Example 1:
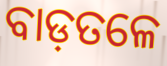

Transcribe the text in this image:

ବାଡ଼ତଳେ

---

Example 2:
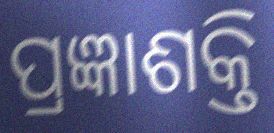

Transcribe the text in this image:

ପ୍ରଜ୍ଞାଶକ୍ତି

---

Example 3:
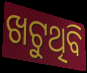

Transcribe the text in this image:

ଖଟୁଥିବି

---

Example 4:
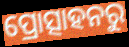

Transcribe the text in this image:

ପ୍ରୋତ୍ସାହନରୁ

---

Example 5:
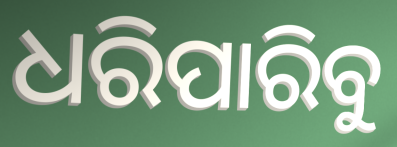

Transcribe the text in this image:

ଧରିପାରିବୁ